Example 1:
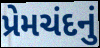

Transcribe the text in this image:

પ્રેમચંદનું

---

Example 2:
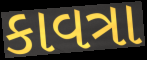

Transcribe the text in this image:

કાવત્રા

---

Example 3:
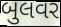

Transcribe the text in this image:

બુલવર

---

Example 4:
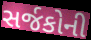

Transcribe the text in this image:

સર્જકોની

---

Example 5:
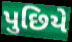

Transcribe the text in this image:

પુછિયે